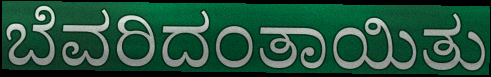
ಬೆವರಿದಂತಾಯಿತು